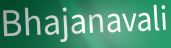
Bhajanavali